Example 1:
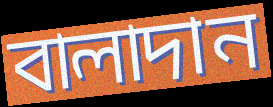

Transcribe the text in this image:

বালাদান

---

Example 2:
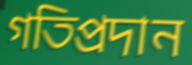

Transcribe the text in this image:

গতিপ্রদান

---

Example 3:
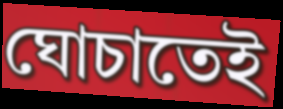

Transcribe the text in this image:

ঘোচাতেই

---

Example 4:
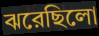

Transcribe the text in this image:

ঝরেছিলো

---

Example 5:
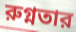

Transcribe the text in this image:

রুগ্নতার